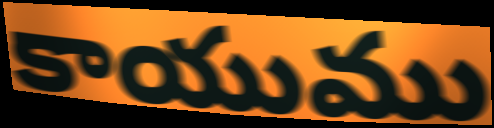
కాయుము